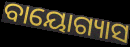
ବାୟୋଗ୍ୟାସ